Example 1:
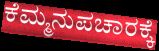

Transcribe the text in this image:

ಕೆಮ್ಮನುಪಚಾರಕ್ಕೆ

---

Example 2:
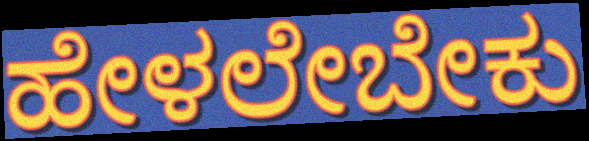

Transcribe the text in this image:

ಹೇಳಲೇಬೇಕು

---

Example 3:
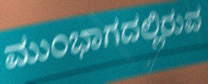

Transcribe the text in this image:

ಮುಂಭಾಗದಲ್ಲಿರುವ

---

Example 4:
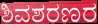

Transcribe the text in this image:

ಶಿವಶರಣರ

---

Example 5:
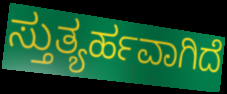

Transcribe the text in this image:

ಸ್ತುತ್ಯರ್ಹವಾಗಿದೆ